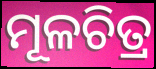
ମୂଳଚିତ୍ର